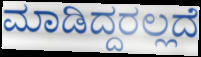
ಮಾಡಿದ್ದರಲ್ಲದೆ